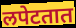
लपेटतात